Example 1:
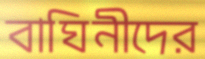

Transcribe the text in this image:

বাঘিনীদের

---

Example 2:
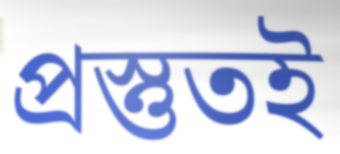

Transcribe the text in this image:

প্রস্তুতই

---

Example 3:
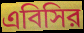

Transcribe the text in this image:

এবিসির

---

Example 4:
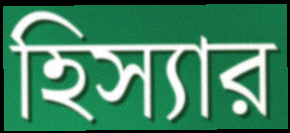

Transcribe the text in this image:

হিস্যার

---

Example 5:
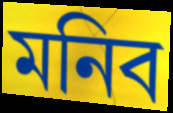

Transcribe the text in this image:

মনিব